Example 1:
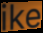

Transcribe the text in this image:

ike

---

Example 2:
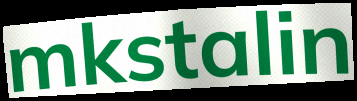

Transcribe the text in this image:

mkstalin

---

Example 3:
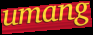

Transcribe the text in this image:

umang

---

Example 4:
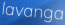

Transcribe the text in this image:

lavanga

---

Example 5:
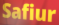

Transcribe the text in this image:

Safiur